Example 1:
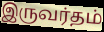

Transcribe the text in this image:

இருவர்தம்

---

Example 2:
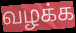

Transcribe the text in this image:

வழக்க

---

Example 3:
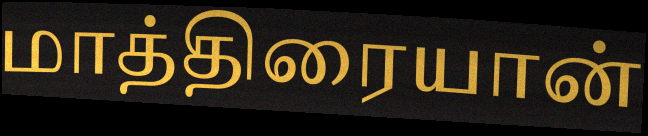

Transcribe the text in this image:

மாத்திரையான்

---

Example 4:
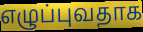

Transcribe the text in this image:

எழுப்புவதாக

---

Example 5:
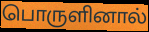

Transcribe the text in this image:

பொருளினால்